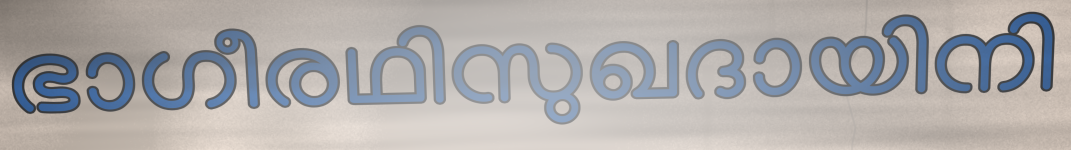
ഭാഗീരഥിസുഖദായിനി